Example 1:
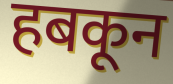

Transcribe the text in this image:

हबकून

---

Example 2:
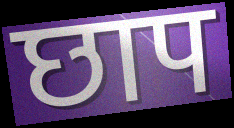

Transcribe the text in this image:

छाप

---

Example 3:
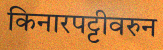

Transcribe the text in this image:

किनारपट्टीवरुन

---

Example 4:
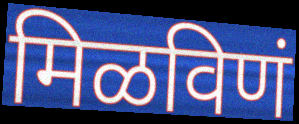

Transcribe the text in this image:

मिळविणं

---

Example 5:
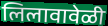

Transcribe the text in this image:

लिलावावेळी